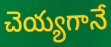
చెయ్యగానే